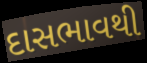
દાસભાવથી